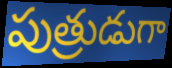
పుత్రుడుగా